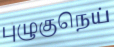
புழுகுநெய்